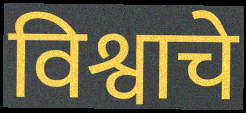
विश्वाचे